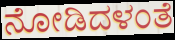
ನೋಡಿದಳಂತೆ